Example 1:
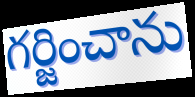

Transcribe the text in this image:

గర్జించాను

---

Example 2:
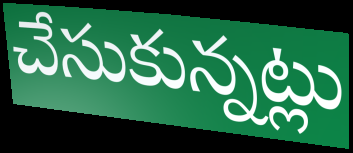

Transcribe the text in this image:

చేసుకున్నట్లు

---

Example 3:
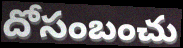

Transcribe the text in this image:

దోసంబంచు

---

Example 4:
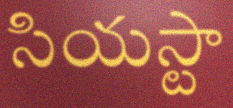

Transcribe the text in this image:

సియస్టా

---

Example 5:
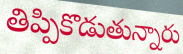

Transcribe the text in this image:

తిప్పికొడుతున్నారు